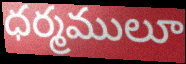
ధర్మములూ